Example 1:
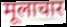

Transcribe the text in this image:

मूलाचार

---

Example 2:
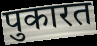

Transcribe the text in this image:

पुकारत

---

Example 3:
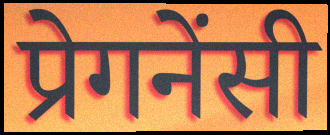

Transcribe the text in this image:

प्रेगनेंसी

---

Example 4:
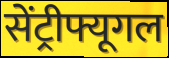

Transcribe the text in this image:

सेंट्रीफ्यूगल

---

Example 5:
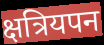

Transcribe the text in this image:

क्षत्रियपन